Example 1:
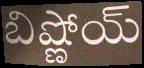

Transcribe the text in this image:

బిష్ణోయ్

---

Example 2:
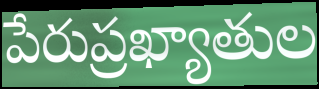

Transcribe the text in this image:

పేరుప్రఖ్యాతుల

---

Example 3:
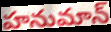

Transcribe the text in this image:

హనుమాన్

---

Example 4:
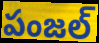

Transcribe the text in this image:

పంజల్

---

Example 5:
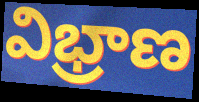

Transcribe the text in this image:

విభ్రాణ